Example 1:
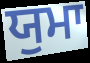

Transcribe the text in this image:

ਯੁਮਾ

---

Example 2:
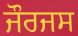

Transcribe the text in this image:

ਜੌਰਜਸ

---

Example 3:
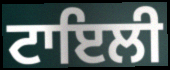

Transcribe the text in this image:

ਟਾਇਲੀ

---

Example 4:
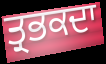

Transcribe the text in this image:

ਤ੍ਰਭਕਦਾ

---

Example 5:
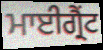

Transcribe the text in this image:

ਮਾਈਗ੍ਰੈਂਟ